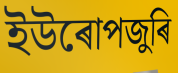
ইউৰোপজুৰি